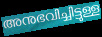
അനുഭവിച്ചിട്ടുള്ള